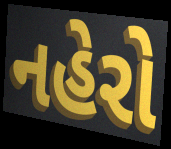
નહેરો